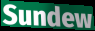
Sundew